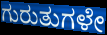
ಗುರುತುಗಳೇ